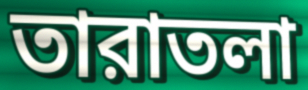
তারাতলা